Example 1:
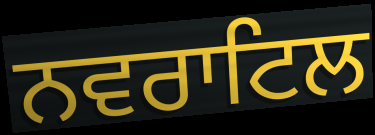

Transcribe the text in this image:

ਨਵਰਾਟਿਲ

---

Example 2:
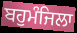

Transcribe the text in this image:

ਬਹੁਮੰਜਿਲਾ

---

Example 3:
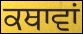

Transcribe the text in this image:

ਕਥਾਵਾਂ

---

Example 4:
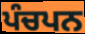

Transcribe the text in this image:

ਪੰਚਪਨ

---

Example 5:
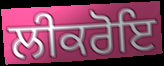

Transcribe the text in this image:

ਲੀਕਰੋਇ